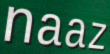
naaz